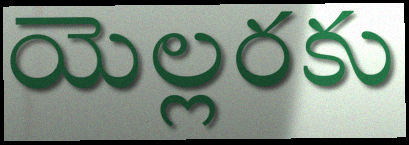
యెల్లరకు